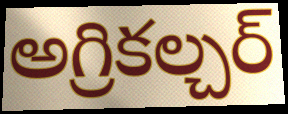
అగ్రికల్చర్